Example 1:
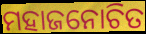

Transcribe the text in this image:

ମହାଜନୋଚିତ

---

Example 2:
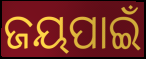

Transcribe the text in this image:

ଜୟପାଇଁ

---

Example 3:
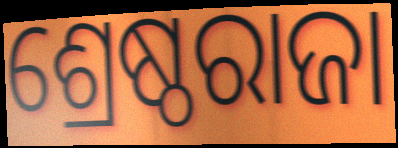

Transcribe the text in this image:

ଶ୍ରେଷ୍ଠରାଜା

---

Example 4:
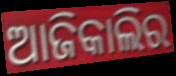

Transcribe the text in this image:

ଆଜିକାଲିର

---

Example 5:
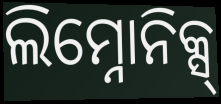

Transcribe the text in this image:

ଲିମ୍ନୋନିକ୍ସ୍